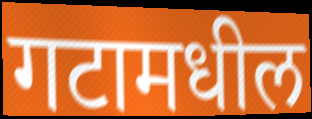
गटामधील